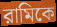
রামিকে